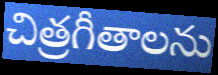
చిత్రగీతాలను